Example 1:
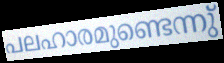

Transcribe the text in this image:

പലഹാരമുണ്ടെന്നു്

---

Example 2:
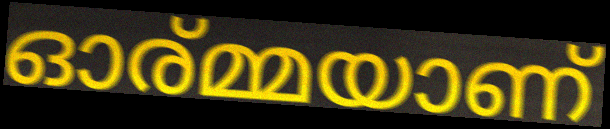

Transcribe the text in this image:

ഓര്മ്മയാണ്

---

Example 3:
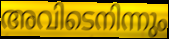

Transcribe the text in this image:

അവിടെനിന്നും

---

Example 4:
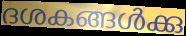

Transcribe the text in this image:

ദശകങ്ങൾക്കു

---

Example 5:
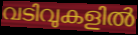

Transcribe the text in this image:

വടിവുകളിൽ